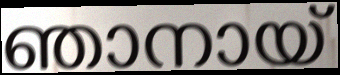
ഞാനായ്